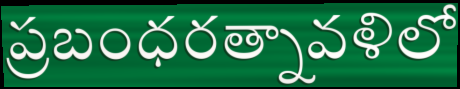
ప్రబంధరత్నావళిలో